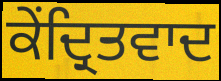
ਕੇਂਦ੍ਰਿਤਵਾਦ